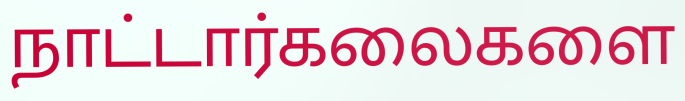
நாட்டார்கலைகளை